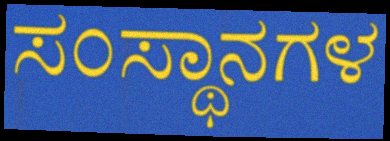
ಸಂಸ್ಥಾನಗಳ